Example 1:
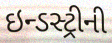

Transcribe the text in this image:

ઇન્ડસ્ટ્રીની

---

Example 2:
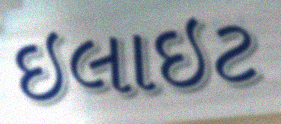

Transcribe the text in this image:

ઇલાઇટ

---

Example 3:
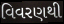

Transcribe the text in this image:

વિવરણથી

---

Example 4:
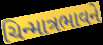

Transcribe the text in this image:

ચિન્માત્રભાવને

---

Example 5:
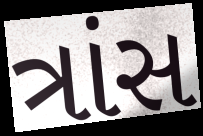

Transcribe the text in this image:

ત્રાંસ